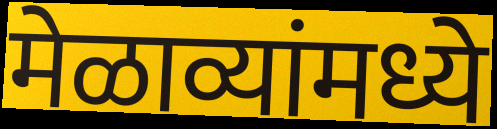
मेळाव्यांमध्ये